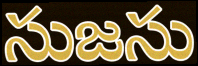
సుజసు